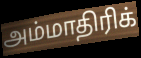
அம்மாதிரிக்